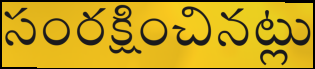
సంరక్షించినట్లు